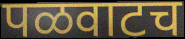
पळवाटच